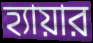
হ্যায়ার